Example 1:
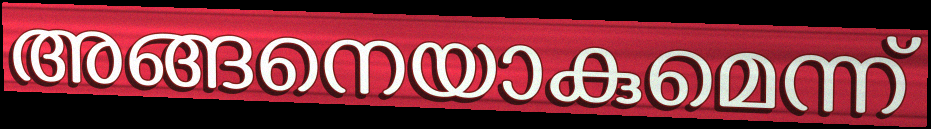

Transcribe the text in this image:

അങ്ങനെയാകുമെന്ന്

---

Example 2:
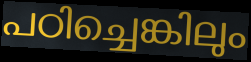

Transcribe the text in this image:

പഠിച്ചെങ്കിലും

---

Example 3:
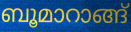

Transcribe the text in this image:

ബൂമാറാങ്ങ്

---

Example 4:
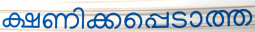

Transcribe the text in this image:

ക്ഷണിക്കപ്പെടാത്ത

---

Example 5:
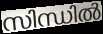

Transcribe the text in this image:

സിന്ധിൽ